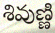
శివుణ్ణి